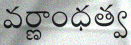
వర్ణాంధత్వ